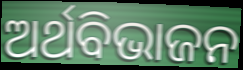
ଅର୍ଥବିଭାଜନ